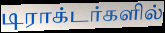
டிராக்டர்களில்